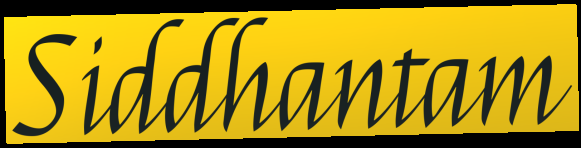
Siddhantam